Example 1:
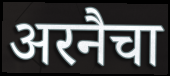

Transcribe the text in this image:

अरनैचा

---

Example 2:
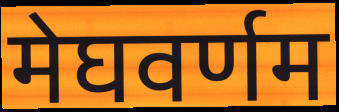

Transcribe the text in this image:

मेघवर्णम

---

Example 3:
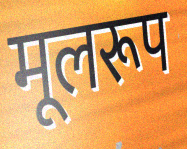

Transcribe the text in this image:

मूलरूप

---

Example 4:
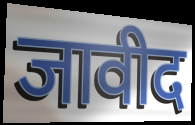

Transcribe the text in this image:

जावीद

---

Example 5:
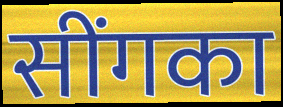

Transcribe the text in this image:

सींगका